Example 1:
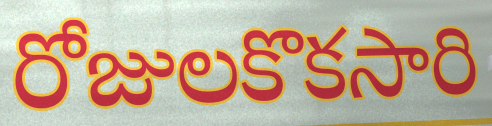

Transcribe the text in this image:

రోజులకొకసారి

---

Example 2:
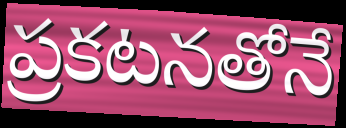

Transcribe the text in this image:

ప్రకటనతోనే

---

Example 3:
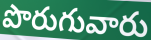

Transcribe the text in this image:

పొరుగువారు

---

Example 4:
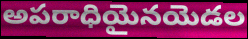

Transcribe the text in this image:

అపరాధియైనయెడల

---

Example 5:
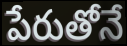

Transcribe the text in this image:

పేరుతోనే